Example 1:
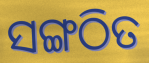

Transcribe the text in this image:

ସଙ୍ଗଠିତ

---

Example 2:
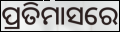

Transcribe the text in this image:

ପ୍ରତିମାସରେ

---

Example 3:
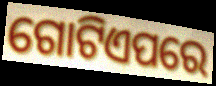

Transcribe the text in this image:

ଗୋଟିଏପରେ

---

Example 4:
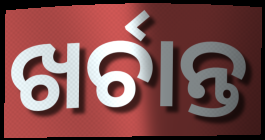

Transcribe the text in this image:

ଖର୍ଚାନ୍ତ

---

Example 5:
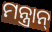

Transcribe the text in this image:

ମନ୍ତ୍ରାନ୍